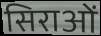
सिराओं